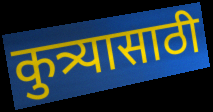
कुत्र्यासाठी